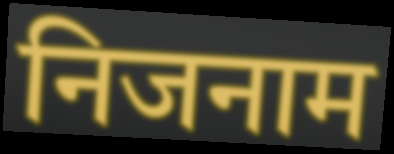
निजनाम